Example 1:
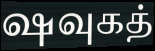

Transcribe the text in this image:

ஷவுகத்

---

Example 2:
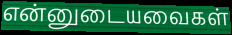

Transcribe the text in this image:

என்னுடையவைகள்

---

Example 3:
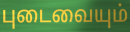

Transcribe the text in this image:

புடைவையும்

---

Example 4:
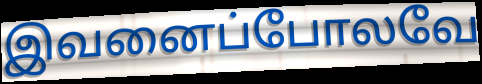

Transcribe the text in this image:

இவனைப்போலவே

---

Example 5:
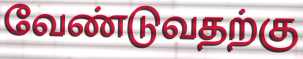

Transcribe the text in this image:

வேண்டுவதற்கு